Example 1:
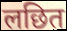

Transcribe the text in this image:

लछित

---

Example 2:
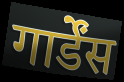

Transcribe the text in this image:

गार्डेंस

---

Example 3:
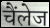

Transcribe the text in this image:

चैंलेज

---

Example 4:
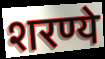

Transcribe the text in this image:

शरण्ये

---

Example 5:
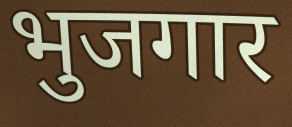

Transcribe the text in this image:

भुजगार